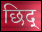
छिद्